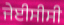
ਜੇਈਸੀਸੀ